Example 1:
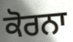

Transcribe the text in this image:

ਕੋਰਨਾ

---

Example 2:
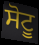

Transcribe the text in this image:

ਸੋਟੂ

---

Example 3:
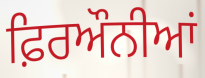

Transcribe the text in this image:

ਫ਼ਿਰਔਨੀਆਂ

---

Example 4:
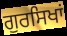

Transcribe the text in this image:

ਗੁਰਸਿਖਾਂ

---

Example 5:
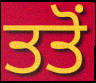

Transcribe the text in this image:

ਤਤੋਂ